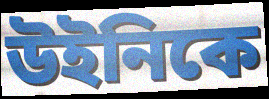
উইনিকে